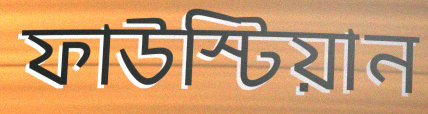
ফাউস্টিয়ান